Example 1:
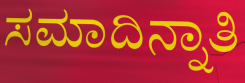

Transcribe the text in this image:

ಸಮಾದಿನ್ನಾತಿ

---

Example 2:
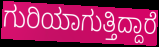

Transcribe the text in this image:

ಗುರಿಯಾಗುತ್ತಿದ್ದಾರೆ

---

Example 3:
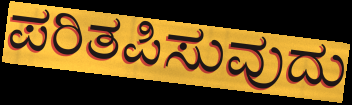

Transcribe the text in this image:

ಪರಿತಪಿಸುವುದು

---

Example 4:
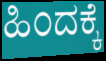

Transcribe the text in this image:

ಹಿಂದಕ್ಕೆ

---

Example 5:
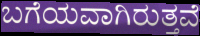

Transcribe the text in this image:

ಬಗೆಯವಾಗಿರುತ್ತವೆ